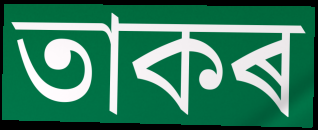
তাকৰ